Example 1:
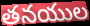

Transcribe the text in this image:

తనయుల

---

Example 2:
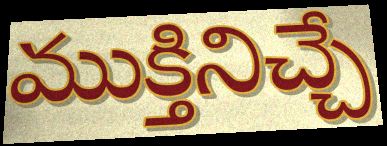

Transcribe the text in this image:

ముక్తినిచ్చే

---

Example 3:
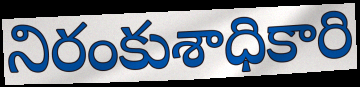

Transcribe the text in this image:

నిరంకుశాధికారి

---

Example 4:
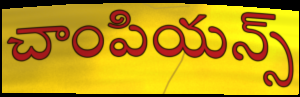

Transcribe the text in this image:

చాంపియన్స్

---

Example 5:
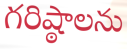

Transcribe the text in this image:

గరిష్ఠాలను